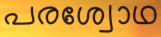
പരശ്വോഥ